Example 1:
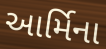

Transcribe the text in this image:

આર્મિના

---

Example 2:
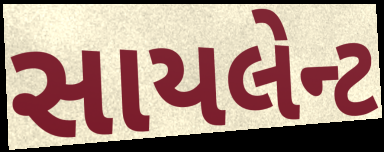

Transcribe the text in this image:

સાયલેન્ટ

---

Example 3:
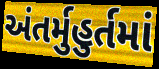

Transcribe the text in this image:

અંતર્મુહુર્તમાં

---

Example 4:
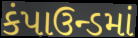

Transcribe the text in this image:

કંપાઉન્ડમાં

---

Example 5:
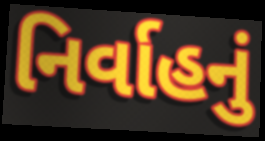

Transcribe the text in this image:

નિર્વાહનું